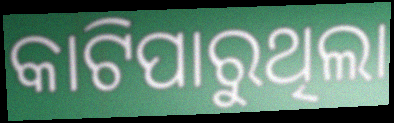
କାଟିପାରୁଥିଲା